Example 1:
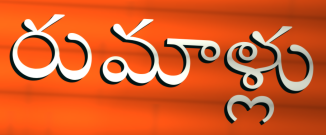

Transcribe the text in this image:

రుమాళ్లు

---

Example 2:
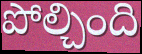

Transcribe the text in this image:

పోల్చింది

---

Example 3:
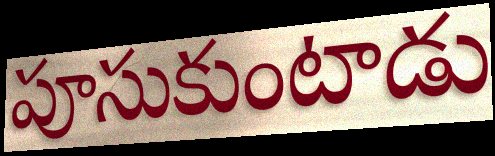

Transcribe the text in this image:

పూసుకుంటాడు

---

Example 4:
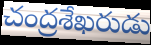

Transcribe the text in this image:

చంద్రశేఖరుడు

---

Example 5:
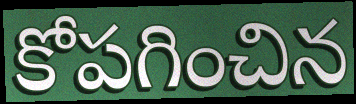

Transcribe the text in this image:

కోపగించిన